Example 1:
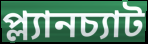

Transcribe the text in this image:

প্ল্যানচ্যাট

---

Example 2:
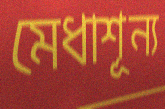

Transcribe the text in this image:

মেধাশূন্য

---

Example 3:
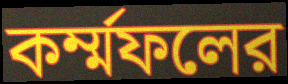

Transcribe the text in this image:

কর্ম্মফলের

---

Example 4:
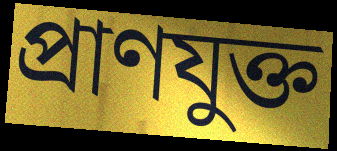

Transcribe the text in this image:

প্রাণযুক্ত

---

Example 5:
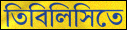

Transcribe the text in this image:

তিবিলিসিতে